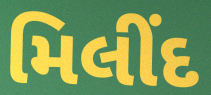
મિલીંદ